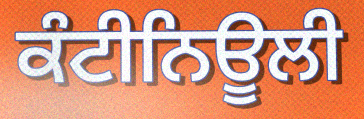
ਕੰਟੀਨਿਊਲੀ